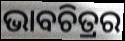
ଭାବଚିତ୍ରର